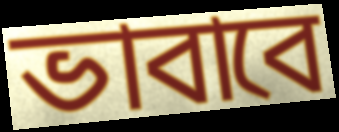
ভাবাবে